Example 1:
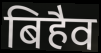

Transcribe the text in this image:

बिहैव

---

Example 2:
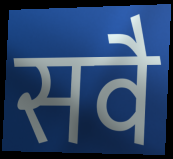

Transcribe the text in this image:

सवै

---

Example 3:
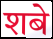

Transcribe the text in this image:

शबे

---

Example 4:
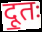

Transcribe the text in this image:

दू॒तः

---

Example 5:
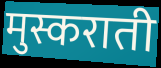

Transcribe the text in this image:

मुस्कराती